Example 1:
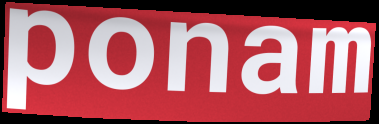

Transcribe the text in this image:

ponam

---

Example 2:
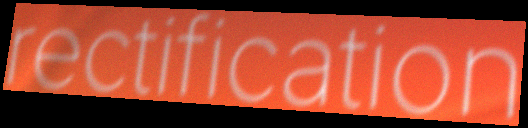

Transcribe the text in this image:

rectification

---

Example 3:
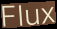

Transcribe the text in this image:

Flux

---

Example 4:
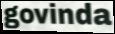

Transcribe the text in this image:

govinda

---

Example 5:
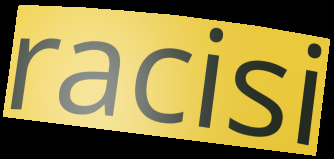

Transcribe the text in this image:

racisi